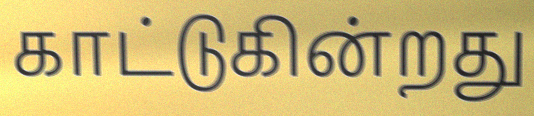
காட்டுகின்றது